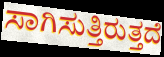
ಸಾಗಿಸುತ್ತಿರುತ್ತದೆ